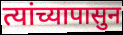
त्यांच्यापासुन